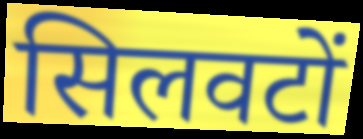
सिलवटों